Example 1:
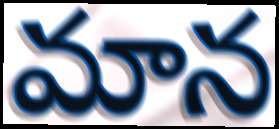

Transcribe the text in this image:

మాన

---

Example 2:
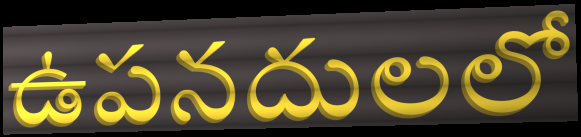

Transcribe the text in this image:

ఉపనదులలో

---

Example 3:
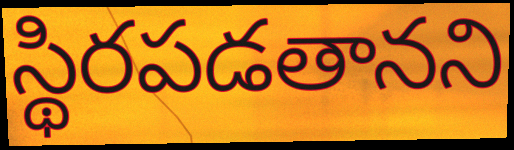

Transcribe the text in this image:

స్థిరపడతానని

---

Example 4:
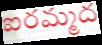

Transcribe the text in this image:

ఐరమ్మద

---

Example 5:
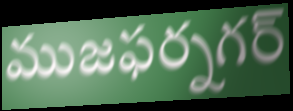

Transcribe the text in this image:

ముజఫర్నగర్